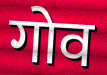
गोव